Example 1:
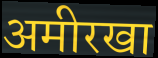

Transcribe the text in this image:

अमीरखा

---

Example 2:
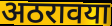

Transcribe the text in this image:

अठरावया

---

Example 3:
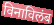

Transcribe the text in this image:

विनाविलंब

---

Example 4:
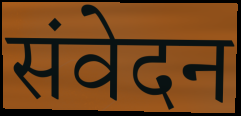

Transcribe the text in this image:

संवेदन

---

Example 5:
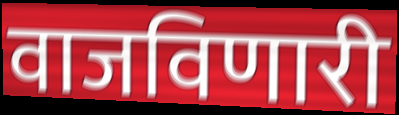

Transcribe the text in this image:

वाजविणारी